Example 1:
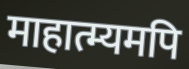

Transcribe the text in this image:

माहात्म्यमपि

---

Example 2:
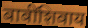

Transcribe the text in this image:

बाबींशिवाय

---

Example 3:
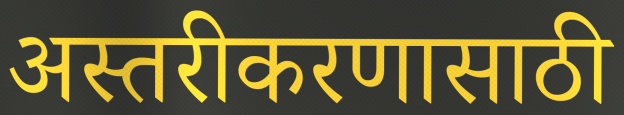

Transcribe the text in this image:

अस्तरीकरणासाठी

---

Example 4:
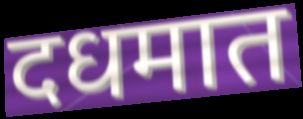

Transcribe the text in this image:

दधमात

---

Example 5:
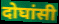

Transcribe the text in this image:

दोघांसी